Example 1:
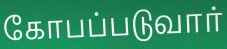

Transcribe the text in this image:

கோபப்படுவார்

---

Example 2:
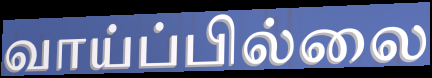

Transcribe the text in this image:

வாய்ப்பில்லை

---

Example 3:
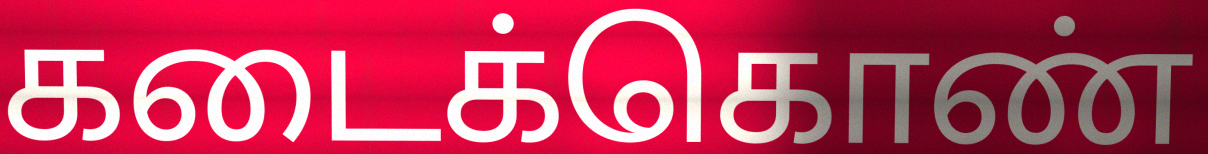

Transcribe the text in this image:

கடைக்கொண்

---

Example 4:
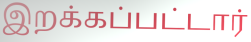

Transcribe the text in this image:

இறக்கப்பட்டார்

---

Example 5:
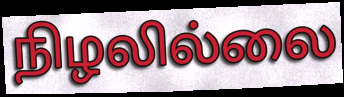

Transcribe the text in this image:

நிழலில்லை